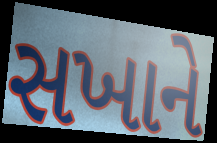
સખાને